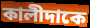
কালীদাকে